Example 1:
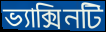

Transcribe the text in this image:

ভ্যাক্সিনটি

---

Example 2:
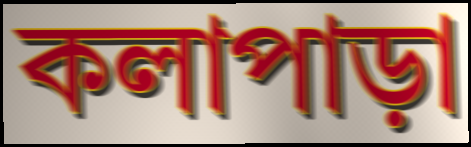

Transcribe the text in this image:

কলাপাড়া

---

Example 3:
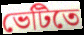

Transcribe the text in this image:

ভেটিতে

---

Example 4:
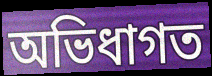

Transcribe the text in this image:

অভিধাগত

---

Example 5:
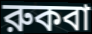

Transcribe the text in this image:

রুকবা